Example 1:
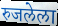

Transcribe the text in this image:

रुजलेला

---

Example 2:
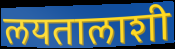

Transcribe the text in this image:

लयतालाशी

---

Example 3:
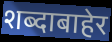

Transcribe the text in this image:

शब्दाबाहेर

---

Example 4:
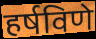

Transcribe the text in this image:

हर्षविणे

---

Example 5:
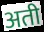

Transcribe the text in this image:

अती